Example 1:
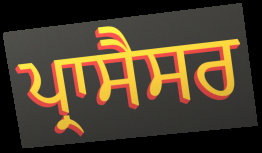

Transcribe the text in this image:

ਪ੍ਰਾਸੈਸਰ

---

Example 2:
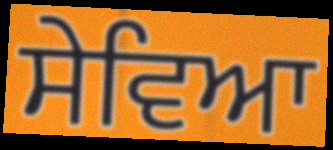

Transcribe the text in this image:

ਸੇਵਿਆ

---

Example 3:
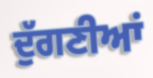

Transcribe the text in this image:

ਦੁੱਗਣੀਆਂ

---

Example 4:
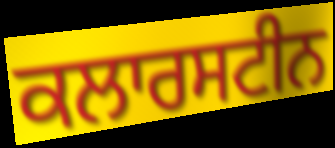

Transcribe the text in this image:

ਕਲਾਰਸਟੀਨ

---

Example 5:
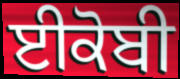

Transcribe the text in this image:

ਈਕੋਬੀ